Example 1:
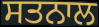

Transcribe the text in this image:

ਸਤਨਾਲ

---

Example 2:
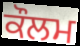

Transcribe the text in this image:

ਕੌਲਮ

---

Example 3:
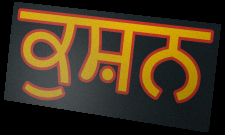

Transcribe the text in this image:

ਕੁਸ਼ਨ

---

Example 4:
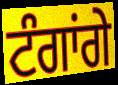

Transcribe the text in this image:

ਟੰਗਾਂਗੇ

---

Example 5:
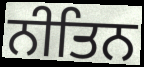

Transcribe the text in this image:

ਨੀਤਿਨ